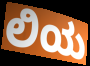
ಲಿಯ